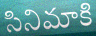
సినిమాకి